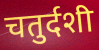
चतुर्दशी